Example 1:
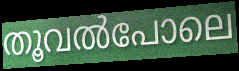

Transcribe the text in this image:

തൂവൽപോലെ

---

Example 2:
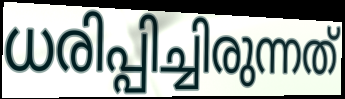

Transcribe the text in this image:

ധരിപ്പിച്ചിരുന്നത്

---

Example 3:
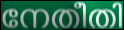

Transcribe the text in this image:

നേതീതി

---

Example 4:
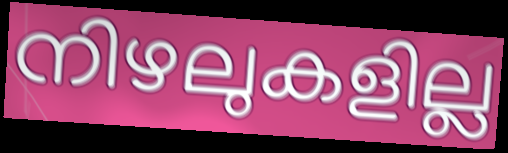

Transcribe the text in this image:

നിഴലുകളില്ല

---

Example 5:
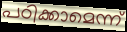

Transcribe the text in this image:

പഠിക്കാമെന്ന്